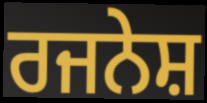
ਰਜਨੇਸ਼